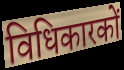
विधिकारकों